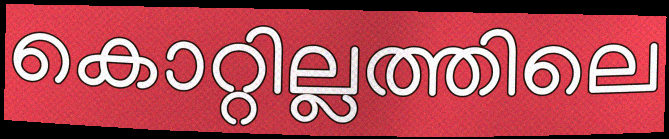
കൊറ്റില്ലത്തിലെ